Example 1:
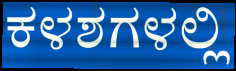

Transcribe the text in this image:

ಕಳಶಗಳಲ್ಲಿ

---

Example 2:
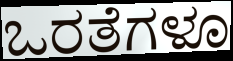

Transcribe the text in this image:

ಒರತೆಗಳೂ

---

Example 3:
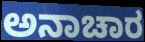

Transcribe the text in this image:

ಅನಾಚಾರ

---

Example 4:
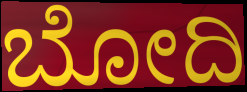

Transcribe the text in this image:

ಬೋದಿ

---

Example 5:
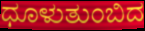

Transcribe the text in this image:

ಧೂಳುತುಂಬಿದ